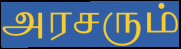
அரசரும்